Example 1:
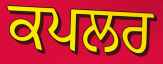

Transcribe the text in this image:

ਕਪਲਰ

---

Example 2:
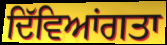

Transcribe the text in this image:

ਦਿੱਵਿਆਂਗਤਾ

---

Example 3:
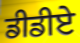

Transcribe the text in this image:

ਡੀਡੀਏ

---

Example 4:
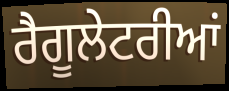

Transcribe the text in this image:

ਰੈਗੂਲੇਟਰੀਆਂ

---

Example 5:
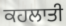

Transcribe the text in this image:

ਕਹਲਾਤੀ